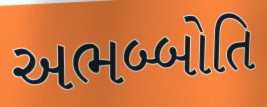
અભબ્બોતિ